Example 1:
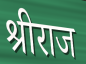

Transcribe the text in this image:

श्रीराज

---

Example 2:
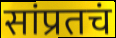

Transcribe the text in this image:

सांप्रतचं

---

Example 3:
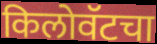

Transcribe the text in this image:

किलोवॅटचा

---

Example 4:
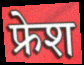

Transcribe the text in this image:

फ्रेश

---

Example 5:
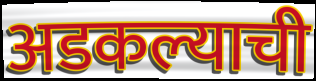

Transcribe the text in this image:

अडकल्याची